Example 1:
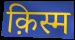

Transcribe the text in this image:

क़िस्‍म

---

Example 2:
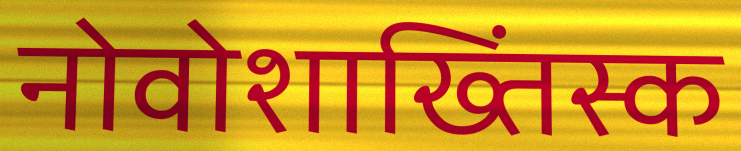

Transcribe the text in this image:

नोवोशाख्तिंस्क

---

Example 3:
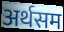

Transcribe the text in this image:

अर्थसम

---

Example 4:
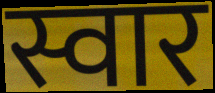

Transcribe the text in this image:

स्‍वार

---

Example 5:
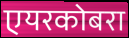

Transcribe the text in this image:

एयरकोबरा